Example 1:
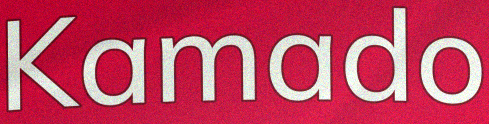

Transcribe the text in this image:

Kamado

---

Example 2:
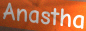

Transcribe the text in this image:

Anastha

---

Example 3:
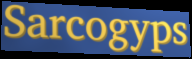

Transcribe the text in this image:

Sarcogyps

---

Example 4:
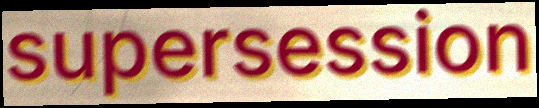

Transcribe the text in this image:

supersession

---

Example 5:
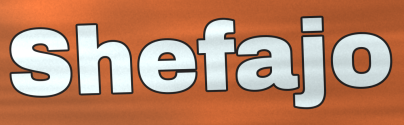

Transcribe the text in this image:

Shefajo